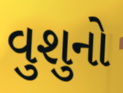
વુશુનો